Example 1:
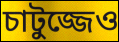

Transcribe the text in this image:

চাটুজ্জেও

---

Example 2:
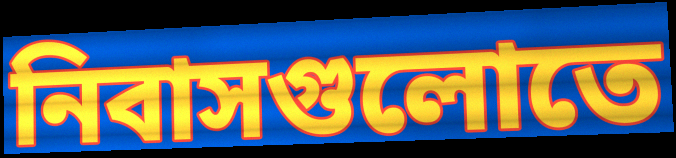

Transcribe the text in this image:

নিবাসগুলোতে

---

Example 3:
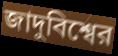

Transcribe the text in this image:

জাদুবিশ্বের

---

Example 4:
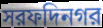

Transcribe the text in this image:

সরফদিনগর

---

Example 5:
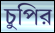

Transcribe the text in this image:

চুপির